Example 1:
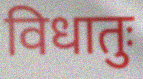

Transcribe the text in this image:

विधातुः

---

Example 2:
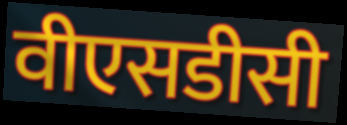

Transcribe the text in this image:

वीएसडीसी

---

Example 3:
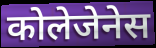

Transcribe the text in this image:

कोलेजेनेस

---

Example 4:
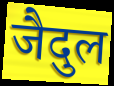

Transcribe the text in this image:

जैदुल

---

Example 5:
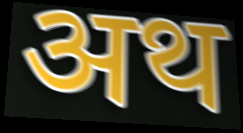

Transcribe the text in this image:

अथ